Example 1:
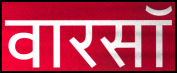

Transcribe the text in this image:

वारसॉ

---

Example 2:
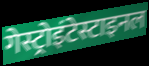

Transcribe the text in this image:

गेस्ट्रोइंटेस्टाइनल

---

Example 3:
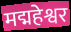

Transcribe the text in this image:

मद्महेश्वर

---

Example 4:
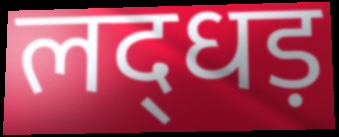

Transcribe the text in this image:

लद्धड़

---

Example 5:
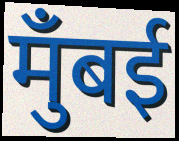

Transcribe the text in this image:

मुँबई